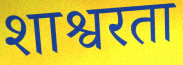
शाश्वरता